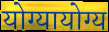
योग्यायोग्य